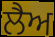
ਲੈਅ